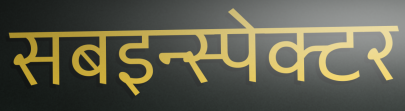
सबइन्स्पेक्टर